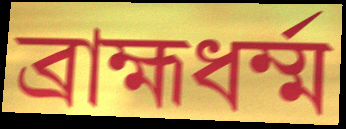
ব্রাহ্মধর্ম্ম